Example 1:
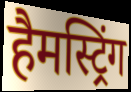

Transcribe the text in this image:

हैमस्ट्रिंग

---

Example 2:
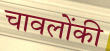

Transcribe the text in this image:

चावलोंकी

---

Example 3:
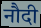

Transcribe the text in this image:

नौदी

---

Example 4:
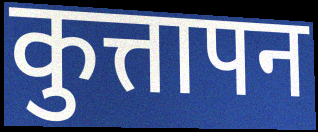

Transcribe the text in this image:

कुत्तापन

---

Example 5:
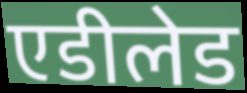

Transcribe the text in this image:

एडीलेड